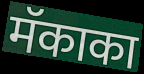
मॅकाका